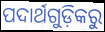
ପଦାର୍ଥଗୁଡ଼ିକରୁ